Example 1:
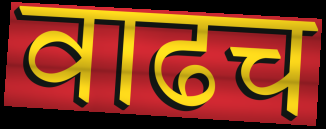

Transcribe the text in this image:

वाढच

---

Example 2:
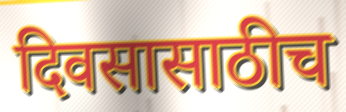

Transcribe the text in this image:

दिवसासाठीच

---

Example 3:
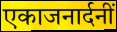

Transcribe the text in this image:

एकाजनार्दनीं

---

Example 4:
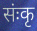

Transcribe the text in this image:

संःकृ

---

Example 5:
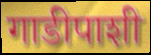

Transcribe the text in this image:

गाडीपाशी